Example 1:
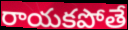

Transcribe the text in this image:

రాయకపోతే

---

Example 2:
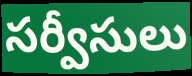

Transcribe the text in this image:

సర్వీసులు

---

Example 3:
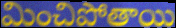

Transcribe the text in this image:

మించిపోతాయి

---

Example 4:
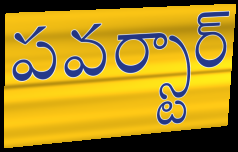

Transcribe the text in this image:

పవర్స్టార్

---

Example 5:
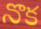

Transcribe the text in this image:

నొక